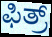
ಫಿತ್ರ್